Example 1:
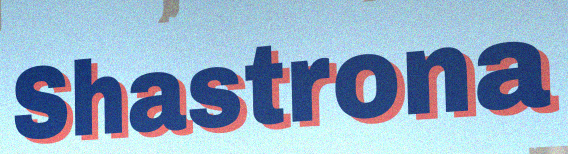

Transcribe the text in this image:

Shastrona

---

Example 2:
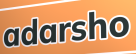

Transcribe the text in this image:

adarsho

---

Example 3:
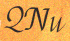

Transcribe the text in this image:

QNu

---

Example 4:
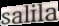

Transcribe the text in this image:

salila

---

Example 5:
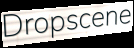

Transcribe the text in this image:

Dropscene